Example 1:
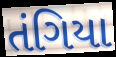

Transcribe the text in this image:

તંગિયા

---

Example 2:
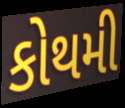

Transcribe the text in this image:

કોથમી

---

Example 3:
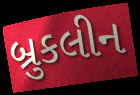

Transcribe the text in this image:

બ્રુકલીન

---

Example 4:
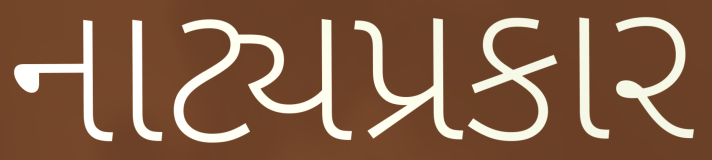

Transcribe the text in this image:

નાટ્યપ્રકાર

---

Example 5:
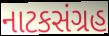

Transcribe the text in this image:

નાટકસંગ્રહ